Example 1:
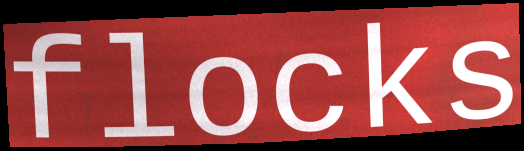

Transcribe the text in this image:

flocks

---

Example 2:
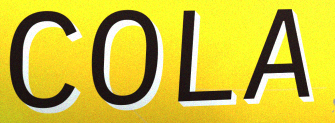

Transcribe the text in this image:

COLA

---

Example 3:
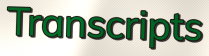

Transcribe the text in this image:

Transcripts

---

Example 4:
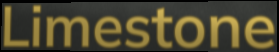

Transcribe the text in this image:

Limestone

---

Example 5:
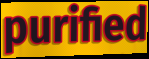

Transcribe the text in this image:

purified